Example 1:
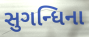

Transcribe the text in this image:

સુગન્ધિના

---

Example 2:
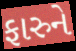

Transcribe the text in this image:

ફારુને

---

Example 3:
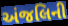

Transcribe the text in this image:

અંજલિની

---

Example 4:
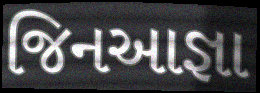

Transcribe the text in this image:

જિનઆજ્ઞા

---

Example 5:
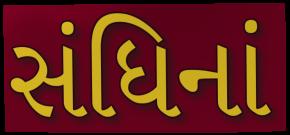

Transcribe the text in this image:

સંધિનાં